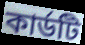
কার্ডটি